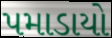
પમાડાયો